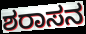
ಶರಾಸನ